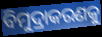
ବିମୁଦ୍ରାକରଣକୁ